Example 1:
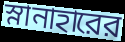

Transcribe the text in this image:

স্নানাহারের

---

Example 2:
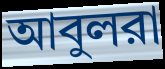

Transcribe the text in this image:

আবুলরা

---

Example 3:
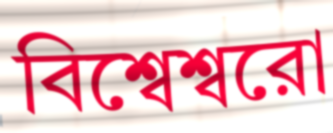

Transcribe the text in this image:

বিশ্বেশ্বরো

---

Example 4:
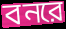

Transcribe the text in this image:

বনরে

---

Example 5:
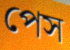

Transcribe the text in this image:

পেস